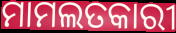
ମାମଲତକାରୀ